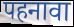
पहनावा